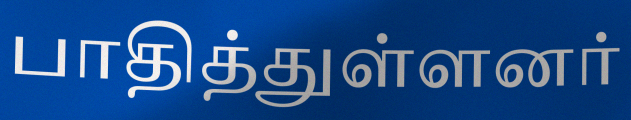
பாதித்துள்ளனர்